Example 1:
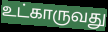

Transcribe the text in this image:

உட்காருவது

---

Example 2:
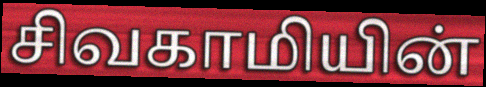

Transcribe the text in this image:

சிவகாமியின்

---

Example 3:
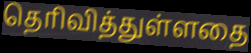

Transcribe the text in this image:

தெரிவித்துள்ளதை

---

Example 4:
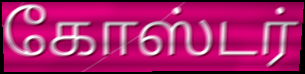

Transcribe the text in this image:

கோஸ்டர்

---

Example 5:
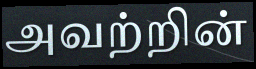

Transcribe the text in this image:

அவற்றின்